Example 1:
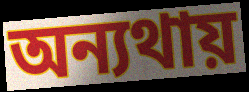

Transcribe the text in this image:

অন্যথায়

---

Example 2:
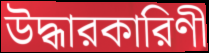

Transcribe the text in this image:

উদ্ধারকারিণী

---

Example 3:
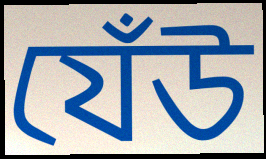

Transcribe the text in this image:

যেঁউ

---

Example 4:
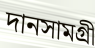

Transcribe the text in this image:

দানসামগ্রী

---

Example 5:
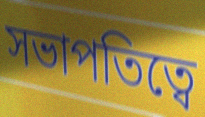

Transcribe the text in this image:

সভাপতিত্বে